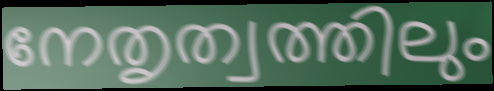
നേതൃത്വത്തിലും